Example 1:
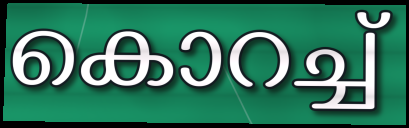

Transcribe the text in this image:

കൊറച്ച്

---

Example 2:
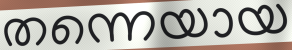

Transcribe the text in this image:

തന്നെയായ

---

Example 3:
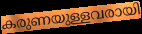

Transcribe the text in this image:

കരുണയുള്ളവരായി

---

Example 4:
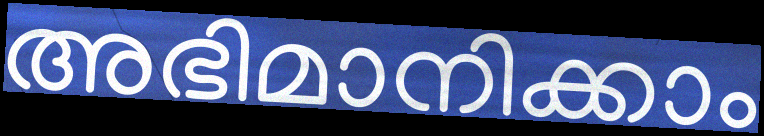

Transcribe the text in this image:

അഭിമാനിക്കാം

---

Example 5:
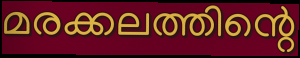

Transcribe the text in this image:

മരക്കലത്തിന്റെ